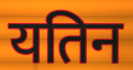
यतिन